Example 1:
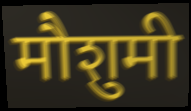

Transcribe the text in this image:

मौशुमी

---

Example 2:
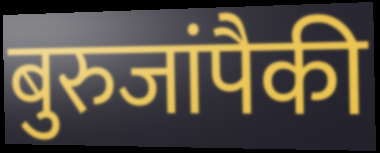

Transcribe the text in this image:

बुरुजांपैकी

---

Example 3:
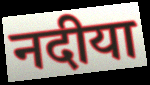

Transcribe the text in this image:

नदीया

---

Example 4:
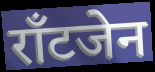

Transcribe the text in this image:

राँटजेन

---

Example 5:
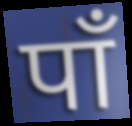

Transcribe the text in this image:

पाँ